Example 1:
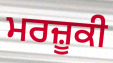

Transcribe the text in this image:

ਮਰਜ਼ੂਕੀ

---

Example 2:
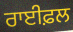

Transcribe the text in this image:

ਰਾਈਫ਼ਲ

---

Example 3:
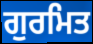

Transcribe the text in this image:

ਗੁਰਮਿਤ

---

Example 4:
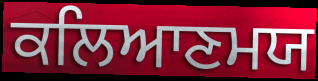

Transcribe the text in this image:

ਕਲਿਆਣਮਯ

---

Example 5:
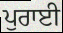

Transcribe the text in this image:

ਪੁਰਾਈ